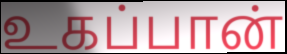
உகப்பான்